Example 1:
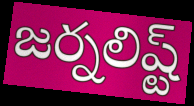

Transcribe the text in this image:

జర్నలిష్ట్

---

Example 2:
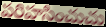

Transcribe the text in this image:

పరిహసించుచు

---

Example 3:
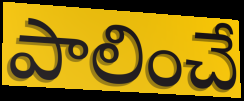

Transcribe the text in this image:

పాలించే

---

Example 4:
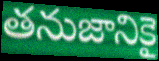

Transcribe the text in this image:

తనుజానికై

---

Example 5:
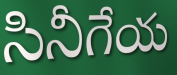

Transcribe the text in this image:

సినీగేయ